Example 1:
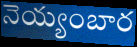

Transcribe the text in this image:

నెయ్యంబార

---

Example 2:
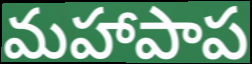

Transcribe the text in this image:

మహాపాప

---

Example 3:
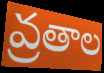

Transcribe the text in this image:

వ్రతాల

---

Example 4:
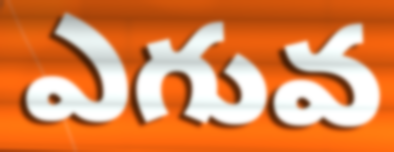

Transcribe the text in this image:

ఎగువ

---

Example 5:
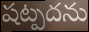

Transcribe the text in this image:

షట్పదను